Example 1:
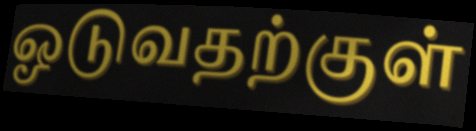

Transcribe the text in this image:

ஓடுவதற்குள்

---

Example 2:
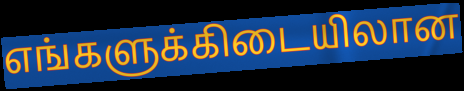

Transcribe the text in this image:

எங்களுக்கிடையிலான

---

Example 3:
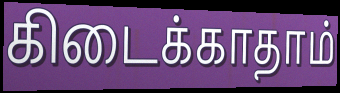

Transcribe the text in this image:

கிடைக்காதாம்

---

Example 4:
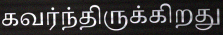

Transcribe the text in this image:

கவர்ந்திருக்கிறது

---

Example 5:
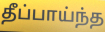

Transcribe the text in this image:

தீப்பாய்ந்த